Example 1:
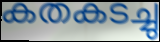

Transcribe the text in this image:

കതകടച്ചു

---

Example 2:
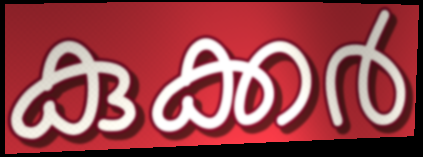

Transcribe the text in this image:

കുക്കർ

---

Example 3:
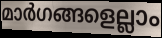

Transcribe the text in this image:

മാർഗങ്ങളെല്ലാം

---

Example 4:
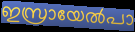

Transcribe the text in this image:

ഇസ്രായേൽപാ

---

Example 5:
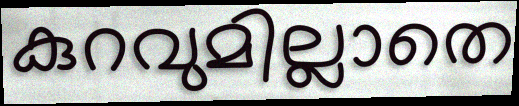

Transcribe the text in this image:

കുറവുമില്ലാതെ